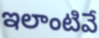
ఇలాంటివే